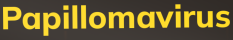
Papillomavirus